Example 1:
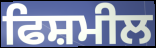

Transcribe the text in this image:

ਫਿਸ਼ਮੀਲ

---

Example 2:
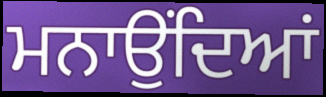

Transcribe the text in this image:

ਮਨਾਉਂਦਿਆਂ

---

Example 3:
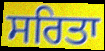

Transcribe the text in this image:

ਸਰਿਤਾ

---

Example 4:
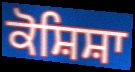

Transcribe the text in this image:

ਕੋਸ਼ਿਸ਼ਾ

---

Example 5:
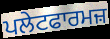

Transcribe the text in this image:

ਪਲੇਟਫਾਰਮਜ਼